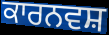
ਕਾਰਨਵਸ਼